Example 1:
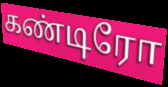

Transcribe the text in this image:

கண்டிரோ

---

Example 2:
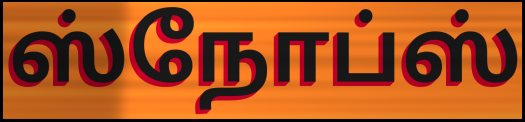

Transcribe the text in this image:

ஸ்நோப்ஸ்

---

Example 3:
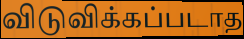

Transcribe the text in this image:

விடுவிக்கப்படாத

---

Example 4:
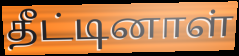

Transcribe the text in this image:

தீட்டினாள்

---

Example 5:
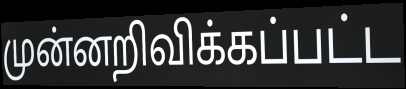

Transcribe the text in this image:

முன்னறிவிக்கப்பட்ட